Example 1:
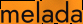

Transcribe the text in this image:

melada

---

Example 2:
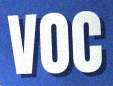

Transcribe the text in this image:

VOC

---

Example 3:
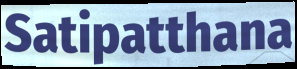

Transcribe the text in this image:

Satipatthana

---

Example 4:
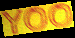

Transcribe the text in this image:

YOO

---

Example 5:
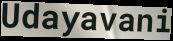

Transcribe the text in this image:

Udayavani